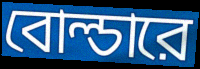
বোল্ডারে